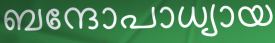
ബന്ദോപാധ്യായ